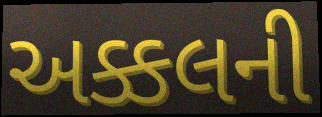
અક્કલની